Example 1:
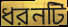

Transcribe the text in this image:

ধরনটি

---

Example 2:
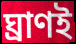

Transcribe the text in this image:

ঘ্রাণই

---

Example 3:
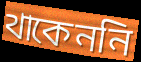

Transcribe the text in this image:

থাকেননি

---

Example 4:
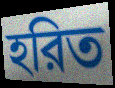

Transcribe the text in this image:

হরিত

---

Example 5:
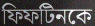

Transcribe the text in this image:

ফিফটিনকে